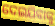
ଦେଇଯିବାକୁ